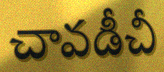
చావడీచీ